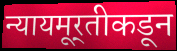
न्यायमूर्तीकडून